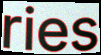
ries